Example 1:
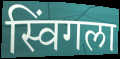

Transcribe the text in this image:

स्विंगला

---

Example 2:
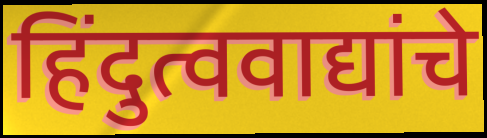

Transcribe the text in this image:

हिंदुत्ववाद्यांचे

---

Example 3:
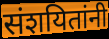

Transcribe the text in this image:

संशयितांनी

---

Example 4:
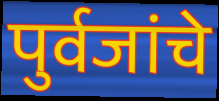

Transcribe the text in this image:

पुर्वजांचे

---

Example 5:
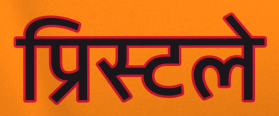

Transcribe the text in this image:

प्रिस्टले